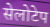
सेलोटेप